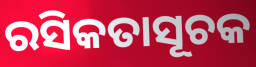
ରସିକତାସୂଚକ